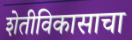
शेतीविकासाचा